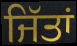
ਜਿੱਤਾਂ